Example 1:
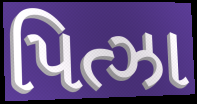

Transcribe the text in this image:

પિત્ઝા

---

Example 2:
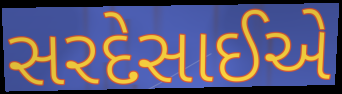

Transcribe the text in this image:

સરદેસાઈએ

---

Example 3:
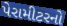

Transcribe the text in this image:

પેરામીટરનો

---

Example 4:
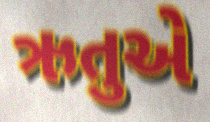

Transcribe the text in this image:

ઋતુએ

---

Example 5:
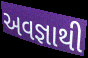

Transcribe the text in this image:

અવજ્ઞાથી